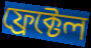
ফ্ৰেক্টেল